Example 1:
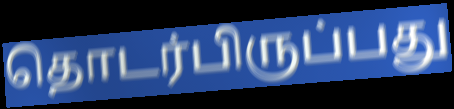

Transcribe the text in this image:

தொடர்பிருப்பது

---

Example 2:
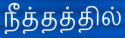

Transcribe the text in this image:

நீத்தத்தில்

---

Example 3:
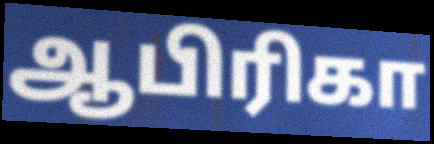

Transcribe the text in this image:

ஆபிரிகா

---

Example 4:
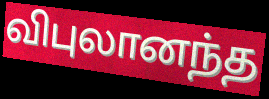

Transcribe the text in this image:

விபுலானந்த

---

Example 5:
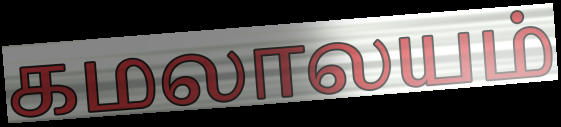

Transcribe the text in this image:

கமலாலயம்